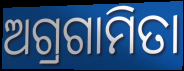
ଅଗ୍ରଗାମିତା